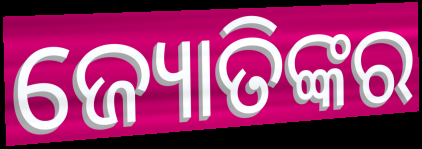
ଜ୍ୟୋତିଙ୍କର